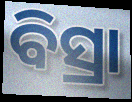
ବିସ୍ରା